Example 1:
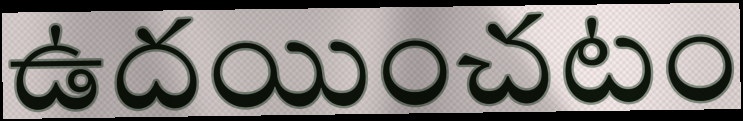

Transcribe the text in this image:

ఉదయించటం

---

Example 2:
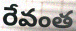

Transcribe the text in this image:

రేవంత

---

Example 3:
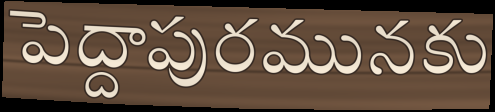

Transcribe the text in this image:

పెద్దాపురమునకు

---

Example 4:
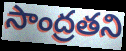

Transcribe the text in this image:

సాంద్రతని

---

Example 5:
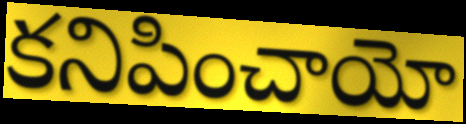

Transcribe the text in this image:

కనిపించాయో